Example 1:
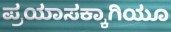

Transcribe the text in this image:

ಪ್ರಯಾಸಕ್ಕಾಗಿಯೂ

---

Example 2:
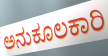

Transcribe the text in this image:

ಅನುಕೂಲಕಾರಿ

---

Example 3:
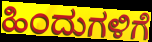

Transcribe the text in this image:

ಹಿಂದುಗಳಿಗೆ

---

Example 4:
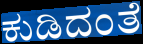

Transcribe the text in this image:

ಕುಡಿದಂತೆ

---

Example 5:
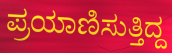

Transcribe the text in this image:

ಪ್ರಯಾಣಿಸುತ್ತಿದ್ದ